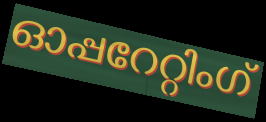
ഓപ്പറേറ്റിംഗ്